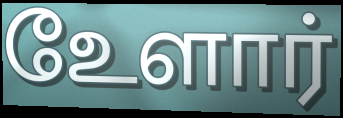
உேளார்